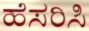
ಹೆಸರಿಸಿ